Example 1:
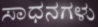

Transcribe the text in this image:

ಸಾಧನಗಳು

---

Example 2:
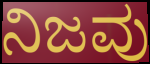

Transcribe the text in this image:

ನಿಜವು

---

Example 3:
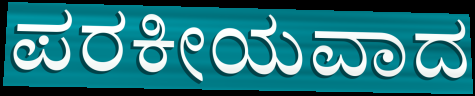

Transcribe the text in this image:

ಪರಕೀಯವಾದ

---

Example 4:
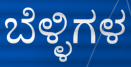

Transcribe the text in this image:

ಬೆಳ್ಳಿಗಳ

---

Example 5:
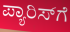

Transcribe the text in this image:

ಪ್ಯಾರಿಸ್‍ಗೆ